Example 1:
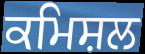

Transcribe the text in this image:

ਕਮਿਸ਼ਲ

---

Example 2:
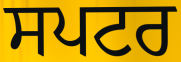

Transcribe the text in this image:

ਸਪਟਰ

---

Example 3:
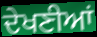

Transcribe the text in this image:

ਦੇਖਣੀਆਂ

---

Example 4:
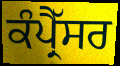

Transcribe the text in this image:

ਕੰਪ੍ਰੈੱਸਰ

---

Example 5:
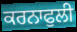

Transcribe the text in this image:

ਕਰਨਾਫੁਲੀ